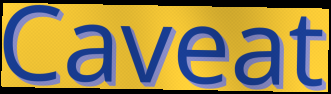
Caveat